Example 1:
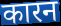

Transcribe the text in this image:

कारन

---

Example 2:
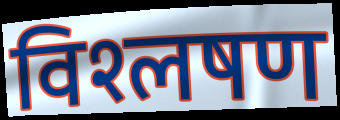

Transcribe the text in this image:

विश्लषण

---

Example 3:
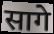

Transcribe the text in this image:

सागे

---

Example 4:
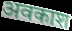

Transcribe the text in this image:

अवकाश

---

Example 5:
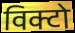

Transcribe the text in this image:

विक्टो